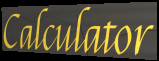
Calculator